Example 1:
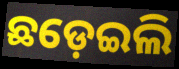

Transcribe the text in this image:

ଛଡ଼େଇଲି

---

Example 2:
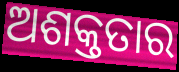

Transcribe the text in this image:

ଅଶକ୍ତତାର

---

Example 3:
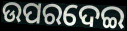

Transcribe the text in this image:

ଉପରଦେଇ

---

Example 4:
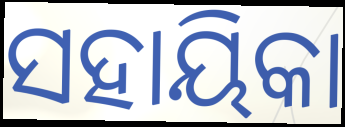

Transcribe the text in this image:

ସହାୟିକା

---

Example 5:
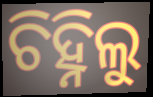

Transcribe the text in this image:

ଚିହ୍ନିଲୁ